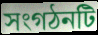
সংগঠনটি